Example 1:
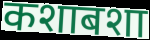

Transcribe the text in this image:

कशाबशा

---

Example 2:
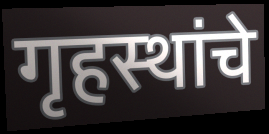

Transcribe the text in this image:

गृहस्थांचे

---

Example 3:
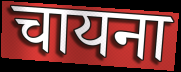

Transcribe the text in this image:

चायना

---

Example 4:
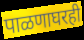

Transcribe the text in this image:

पाळणाघरही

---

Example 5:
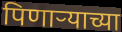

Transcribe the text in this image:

पिणाऱ्याच्या